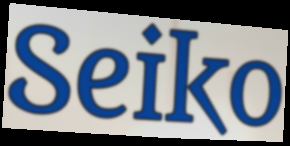
Seiko